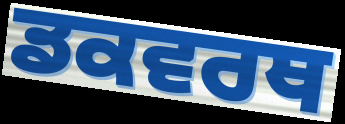
ਡਕਵਰਥ